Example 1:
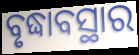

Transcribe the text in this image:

ବୃଦ୍ଧାବସ୍ଥାର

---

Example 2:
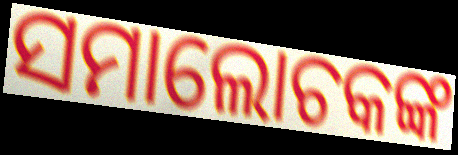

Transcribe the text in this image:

ସମାଲୋଚକଙ୍କ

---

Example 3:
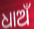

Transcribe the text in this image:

ଧାଅଁ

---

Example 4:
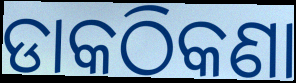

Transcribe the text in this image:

ଡାକଠିକଣା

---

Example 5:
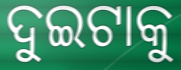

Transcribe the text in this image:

ଦୁଇଟାକୁ